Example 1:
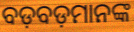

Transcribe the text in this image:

ବଡ଼ବଡ଼ମାନଙ୍କ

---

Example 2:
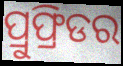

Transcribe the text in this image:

ପ୍ରୁଫ୍ରିଡର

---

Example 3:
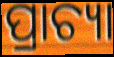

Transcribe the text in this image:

ପ୍ରାଚ୍ୟା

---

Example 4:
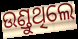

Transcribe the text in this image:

ଉଣ୍ଡୁଥିଲେ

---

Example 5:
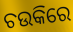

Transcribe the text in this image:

ଚଉକିରେ